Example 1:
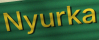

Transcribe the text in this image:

Nyurka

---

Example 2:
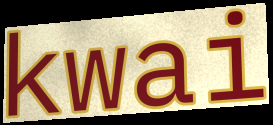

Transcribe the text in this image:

kwai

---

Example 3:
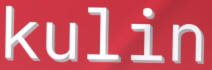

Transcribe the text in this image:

kulin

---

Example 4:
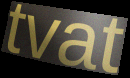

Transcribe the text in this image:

tvat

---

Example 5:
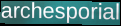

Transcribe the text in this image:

archesporial